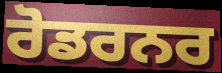
ਰੋਡਰਨਰ